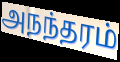
அநந்தரம்